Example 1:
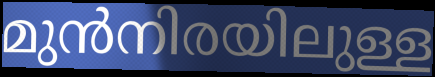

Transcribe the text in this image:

മുൻനിരയിലുള്ള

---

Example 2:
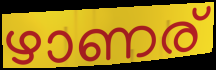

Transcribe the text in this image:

ഴാണര്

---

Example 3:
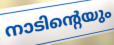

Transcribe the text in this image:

നാടിന്റെയും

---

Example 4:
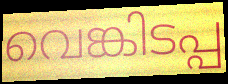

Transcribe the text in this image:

വെങ്കിടപ്പ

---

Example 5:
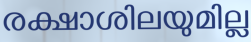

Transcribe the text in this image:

രക്ഷാശിലയുമില്ല